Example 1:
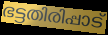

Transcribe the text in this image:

ഭട്ടതിരിപ്പാട്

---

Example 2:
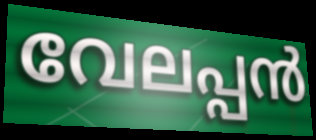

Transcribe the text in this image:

വേലപ്പൻ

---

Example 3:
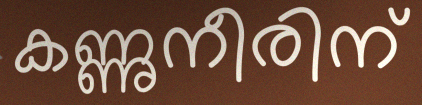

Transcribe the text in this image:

കണ്ണുനീരിന്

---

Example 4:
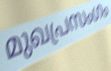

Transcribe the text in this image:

മുഖപ്രസംഗം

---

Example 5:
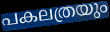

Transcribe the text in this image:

പകലത്രയും